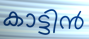
കാട്ടിൻ